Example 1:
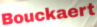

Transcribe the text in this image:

Bouckaert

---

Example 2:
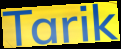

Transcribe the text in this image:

Tarik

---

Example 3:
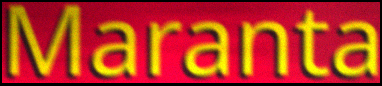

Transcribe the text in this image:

Maranta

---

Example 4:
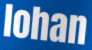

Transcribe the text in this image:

lohan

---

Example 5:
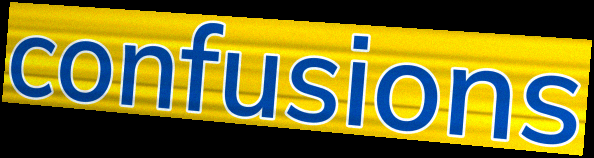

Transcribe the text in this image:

confusions